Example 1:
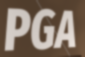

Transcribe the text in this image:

PGA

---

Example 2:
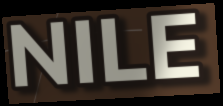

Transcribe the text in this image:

NILE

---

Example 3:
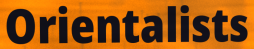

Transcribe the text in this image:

Orientalists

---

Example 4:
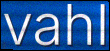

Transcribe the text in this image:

vahl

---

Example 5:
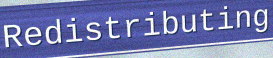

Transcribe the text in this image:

Redistributing